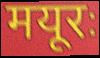
मयूरः